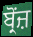
ਬ੍ਰੋਂਜ਼